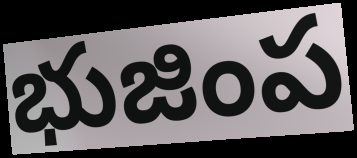
భుజింప